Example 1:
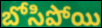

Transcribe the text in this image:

బోసిపోయి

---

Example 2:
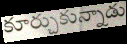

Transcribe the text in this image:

కూర్చుకున్నాడు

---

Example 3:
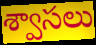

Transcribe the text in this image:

శ్వాసలు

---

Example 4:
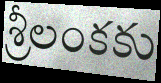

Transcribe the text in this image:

శ్రీలంకకు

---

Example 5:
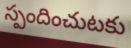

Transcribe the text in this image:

స్పందించుటకు